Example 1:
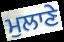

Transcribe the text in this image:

ਮੁਲਾਣੇ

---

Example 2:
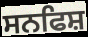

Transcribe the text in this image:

ਸਨਫਿਸ਼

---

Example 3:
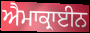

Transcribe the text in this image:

ਐਮਾਕ੍ਰਾਈਨ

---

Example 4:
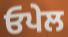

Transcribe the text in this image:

ਓਪੇਲ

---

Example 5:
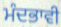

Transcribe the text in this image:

ਮੰਦਭਾਵੀ